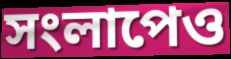
সংলাপেও